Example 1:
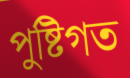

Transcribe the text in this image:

পুষ্টিগত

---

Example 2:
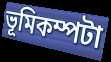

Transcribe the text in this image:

ভূমিকম্পটা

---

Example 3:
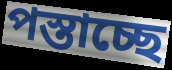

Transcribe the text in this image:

পস্তাচ্ছে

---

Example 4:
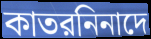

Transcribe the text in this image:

কাতরনিনাদে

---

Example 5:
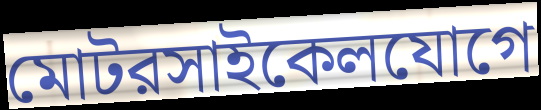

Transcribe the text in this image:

মোটরসাইকেলযোগে